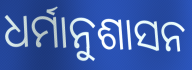
ଧର୍ମାନୁଶାସନ